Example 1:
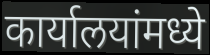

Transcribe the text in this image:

कार्यालयांमध्ये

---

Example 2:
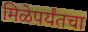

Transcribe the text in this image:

मिळेपर्यंतचा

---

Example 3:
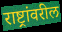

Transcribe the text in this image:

राष्ट्रांवरील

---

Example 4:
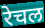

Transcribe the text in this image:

रेचल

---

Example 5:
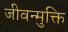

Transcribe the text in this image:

जीवन्मुक्ति